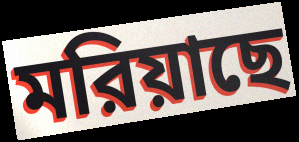
মরিয়াছে